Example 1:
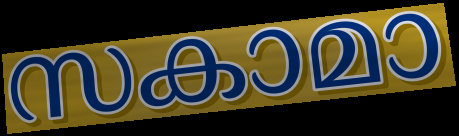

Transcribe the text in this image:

സകാമാ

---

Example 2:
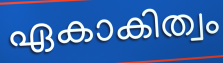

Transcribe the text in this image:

ഏകാകിത്വം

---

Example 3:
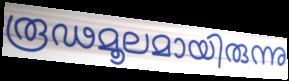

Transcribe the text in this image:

രൂഢമൂലമായിരുന്നു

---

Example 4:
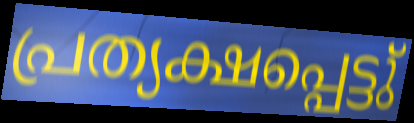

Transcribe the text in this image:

പ്രത്യക്ഷപ്പെട്ടു്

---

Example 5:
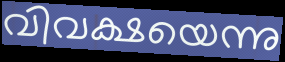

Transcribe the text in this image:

വിവക്ഷയെന്നു